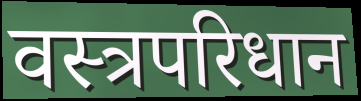
वस्त्रपरिधान